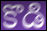
కొడి